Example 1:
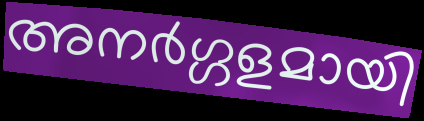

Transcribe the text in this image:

അനർഗ്ഗളമായി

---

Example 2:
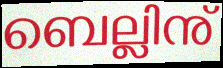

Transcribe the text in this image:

ബെല്ലിനു്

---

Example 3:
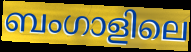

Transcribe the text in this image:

ബംഗാളിലെ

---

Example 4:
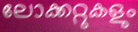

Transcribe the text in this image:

ലോക്കറ്റുകളും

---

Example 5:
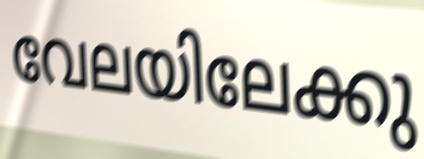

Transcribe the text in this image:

വേലയിലേക്കു